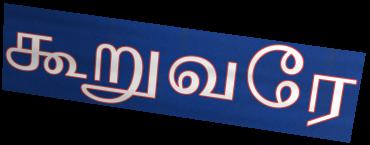
கூறுவரே